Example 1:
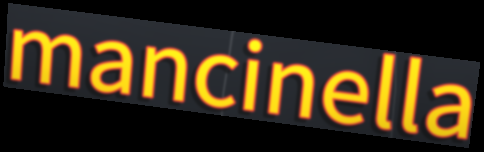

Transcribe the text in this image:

mancinella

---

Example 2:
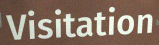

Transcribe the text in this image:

Visitation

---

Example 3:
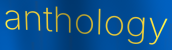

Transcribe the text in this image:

anthology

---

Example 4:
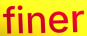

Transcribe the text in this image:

finer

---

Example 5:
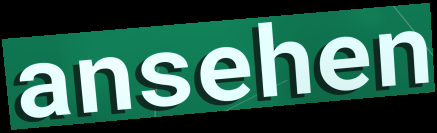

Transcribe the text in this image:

ansehen